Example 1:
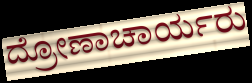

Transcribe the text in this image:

ದ್ರೋಣಾಚಾರ್ಯರು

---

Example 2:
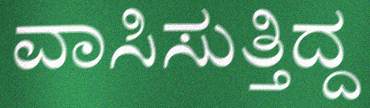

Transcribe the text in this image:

ವಾಸಿಸುತ್ತಿದ್ದ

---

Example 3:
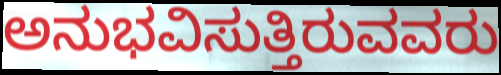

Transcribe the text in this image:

ಅನುಭವಿಸುತ್ತಿರುವವರು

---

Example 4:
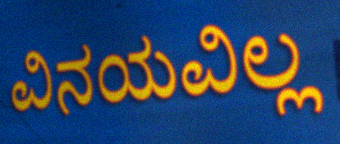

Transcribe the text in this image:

ವಿನಯವಿಲ್ಲ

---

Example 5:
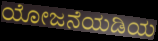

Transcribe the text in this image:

ಯೋಜನೆಯಡಿಯ